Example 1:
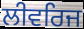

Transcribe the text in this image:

ਲੀਵਰਿਜ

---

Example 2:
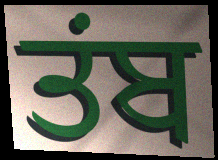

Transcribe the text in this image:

ਤਂਬ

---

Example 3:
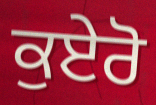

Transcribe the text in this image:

ਕੁਏਰੋ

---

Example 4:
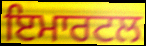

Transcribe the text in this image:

ਇਮਾਰਟਲ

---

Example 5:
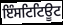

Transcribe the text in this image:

ਇੰਸਟਿਟਿਊਟ